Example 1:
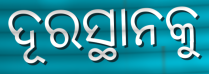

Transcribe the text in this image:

ଦୂରସ୍ଥାନକୁ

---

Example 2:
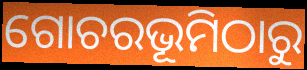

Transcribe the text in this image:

ଗୋଚରଭୂମିଠାରୁ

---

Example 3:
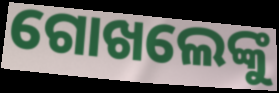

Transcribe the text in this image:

ଗୋଖଲେଙ୍କୁ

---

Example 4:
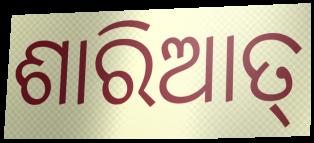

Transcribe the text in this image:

ଶାରିଆତ୍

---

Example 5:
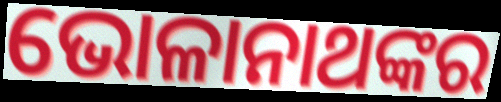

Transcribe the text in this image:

ଭୋଳାନାଥଙ୍କର